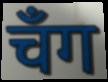
चँग